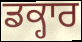
ਡਕ੍ਹਾਰ